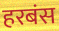
हरबंस